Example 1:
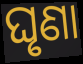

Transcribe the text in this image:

ଘୃଣା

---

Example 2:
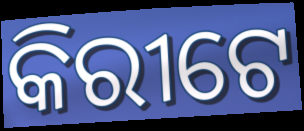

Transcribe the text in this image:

କିରୀଟେ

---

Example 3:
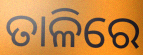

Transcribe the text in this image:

ତାଳିରେ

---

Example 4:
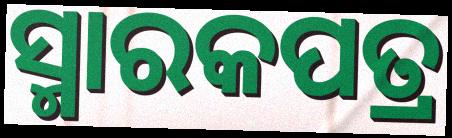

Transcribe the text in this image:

ସ୍ମାରକପତ୍ର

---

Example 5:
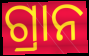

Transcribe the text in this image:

ଗ୍ରାନ